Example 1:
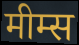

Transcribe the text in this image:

मीम्स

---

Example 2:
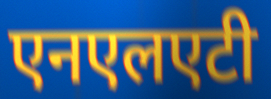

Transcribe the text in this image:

एनएलएटी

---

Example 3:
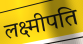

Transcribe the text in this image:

लक्ष्मीपति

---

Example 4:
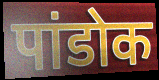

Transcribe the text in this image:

पांडोक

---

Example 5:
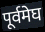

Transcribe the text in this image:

पूर्वमेघ